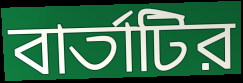
বার্তাটির